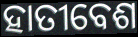
ହାତୀବେଶ